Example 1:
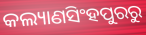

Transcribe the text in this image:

କଲ୍ୟାଣସିଂହପୁରରୁ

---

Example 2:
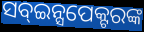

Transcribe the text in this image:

ସବ୍ଇନ୍ସପେକ୍ଟରଙ୍କ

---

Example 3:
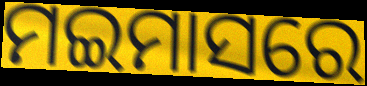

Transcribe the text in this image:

ମଇମାସରେ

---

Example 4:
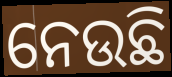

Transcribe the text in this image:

ନେଉଛି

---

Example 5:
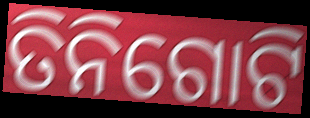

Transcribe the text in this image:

ତିନିଗୋଟି